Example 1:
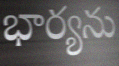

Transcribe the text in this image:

భార్యను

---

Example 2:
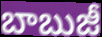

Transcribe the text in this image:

బాబుజీ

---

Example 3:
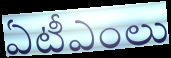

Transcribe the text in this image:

ఏటీఎంలు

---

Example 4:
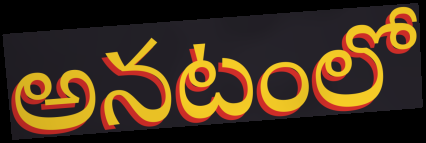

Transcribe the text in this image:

అనటంలో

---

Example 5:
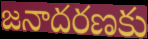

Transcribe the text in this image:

జనాదరణకు